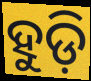
ହୁଡ଼ି